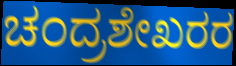
ಚಂದ್ರಶೇಖರರ